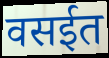
वसईत